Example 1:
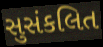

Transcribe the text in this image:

સુસંકલિત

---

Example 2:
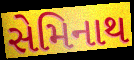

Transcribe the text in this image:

સેમિનાથ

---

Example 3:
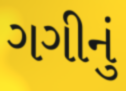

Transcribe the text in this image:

ગગીનું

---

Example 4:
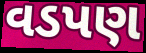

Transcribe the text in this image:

વડપણ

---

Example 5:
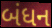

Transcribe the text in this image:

બંધન